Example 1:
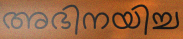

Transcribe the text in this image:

അഭിനയിച്ച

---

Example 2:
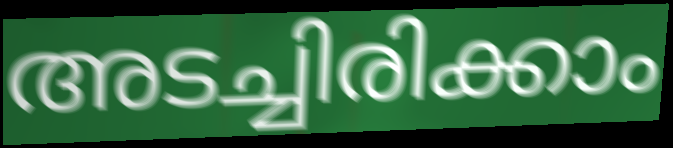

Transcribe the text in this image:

അടച്ചിരിക്കാം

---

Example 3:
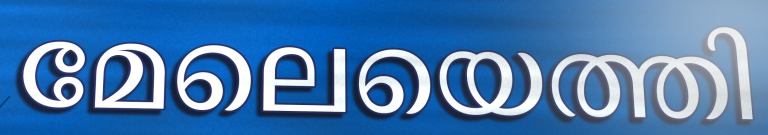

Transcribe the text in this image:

മേലെയെത്തി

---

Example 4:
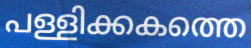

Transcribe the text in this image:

പള്ളിക്കകത്തെ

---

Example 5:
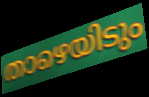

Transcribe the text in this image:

താഴെയിടും